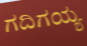
ಗದಿಗಯ್ಯ